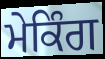
ਮੇਕਿੰਗ